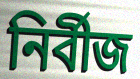
নির্বীজ